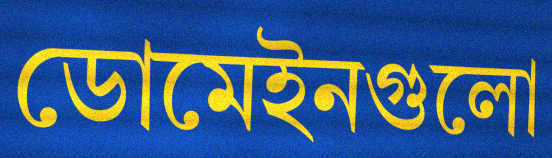
ডোমেইনগুলো